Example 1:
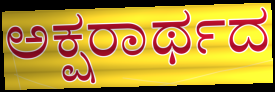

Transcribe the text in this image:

ಅಕ್ಷರಾರ್ಥದ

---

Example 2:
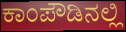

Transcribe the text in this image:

ಕಾಂಪೌಡಿನಲ್ಲಿ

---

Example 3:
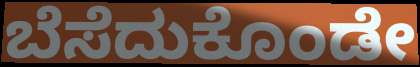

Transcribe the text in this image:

ಬೆಸೆದುಕೊಂಡೇ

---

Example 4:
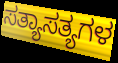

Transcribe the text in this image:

ಸತ್ಯಾಸತ್ಯಗಳ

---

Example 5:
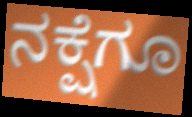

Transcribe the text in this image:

ನಕ್ಷೆಗೂ